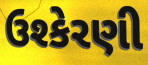
ઉશ્કેરણી